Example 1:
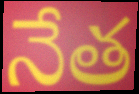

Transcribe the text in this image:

నేత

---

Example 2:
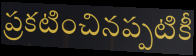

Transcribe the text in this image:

ప్రకటించినప్పటికీ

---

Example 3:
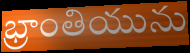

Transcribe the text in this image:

భ్రాంతియును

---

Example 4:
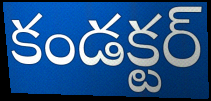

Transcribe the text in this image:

కండక్టర్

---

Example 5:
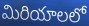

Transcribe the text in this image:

మిరియాలలో